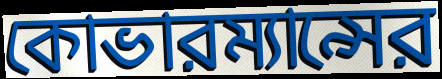
কোভারম্যান্সের